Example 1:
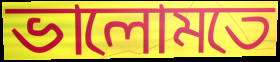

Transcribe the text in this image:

ভালোমতে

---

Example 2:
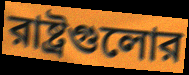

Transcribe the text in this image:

রাষ্ট্রগুলোর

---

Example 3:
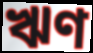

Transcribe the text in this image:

ঋণ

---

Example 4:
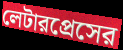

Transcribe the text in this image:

লেটারপ্রেসের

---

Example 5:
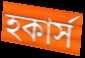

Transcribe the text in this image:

হকার্স